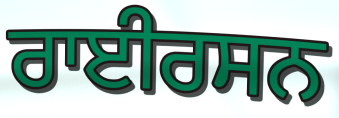
ਰਾਈਰਸਨ